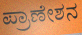
ಪ್ರಾಣೇಶನ